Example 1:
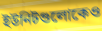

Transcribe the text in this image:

ইউনিটগুলোকেও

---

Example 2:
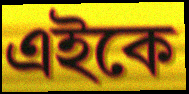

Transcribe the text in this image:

এইকে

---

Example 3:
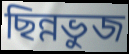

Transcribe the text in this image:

ছিন্নভুজ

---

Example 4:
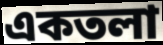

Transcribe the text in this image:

একতলা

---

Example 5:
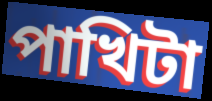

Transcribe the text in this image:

পাখিটা